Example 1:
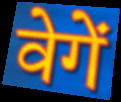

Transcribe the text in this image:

वेगें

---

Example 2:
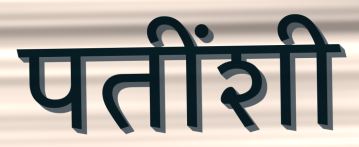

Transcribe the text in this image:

पतींशी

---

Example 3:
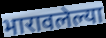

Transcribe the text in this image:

भारावलेल्या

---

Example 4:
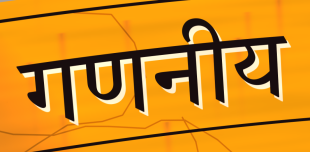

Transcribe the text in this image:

गणनीय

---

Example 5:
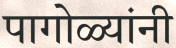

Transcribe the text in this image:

पागोळ्यांनी